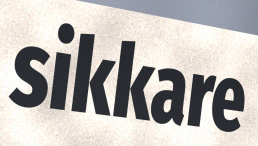
sikkare